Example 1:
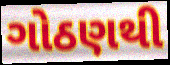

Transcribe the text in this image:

ગોઠણથી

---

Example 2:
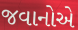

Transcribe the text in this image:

જવાનોએ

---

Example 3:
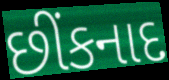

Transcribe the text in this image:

છીંકનાદ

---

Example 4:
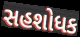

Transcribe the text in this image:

સહશોધક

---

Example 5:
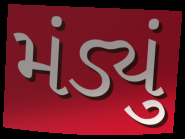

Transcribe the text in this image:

મંડ્યું